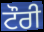
ਟੌਰੀ